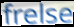
frelse